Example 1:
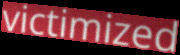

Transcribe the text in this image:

victimized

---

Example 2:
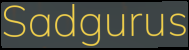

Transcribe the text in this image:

Sadgurus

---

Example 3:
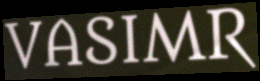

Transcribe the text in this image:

VASIMR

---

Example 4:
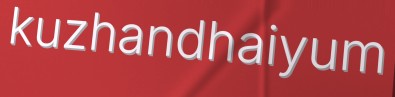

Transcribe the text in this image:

kuzhandhaiyum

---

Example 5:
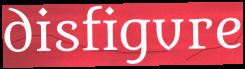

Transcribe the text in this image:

disfigure